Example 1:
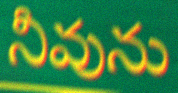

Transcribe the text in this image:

నీవును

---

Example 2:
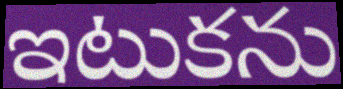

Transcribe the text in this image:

ఇటుకను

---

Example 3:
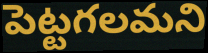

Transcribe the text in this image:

పెట్టగలమని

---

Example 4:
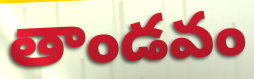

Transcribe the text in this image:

తాండవం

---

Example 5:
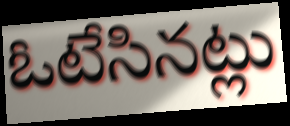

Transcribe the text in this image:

ఓటేసినట్లు